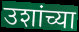
उशांच्या